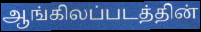
ஆங்கிலப்படத்தின்